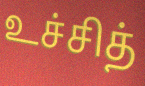
உச்சித்